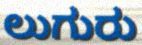
ಲುಗುರು